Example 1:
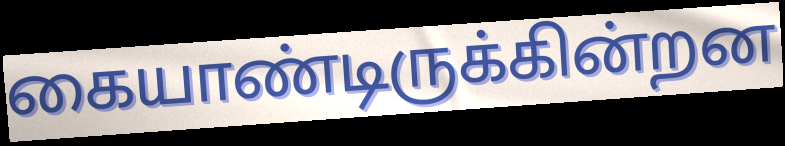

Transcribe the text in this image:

கையாண்டிருக்கின்றன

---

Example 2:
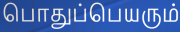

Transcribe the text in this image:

பொதுப்பெயரும்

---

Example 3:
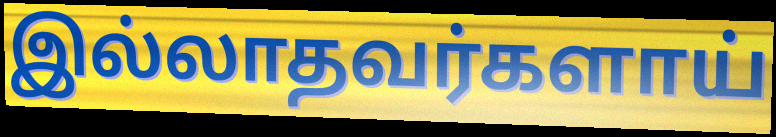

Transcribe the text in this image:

இல்லாதவர்களாய்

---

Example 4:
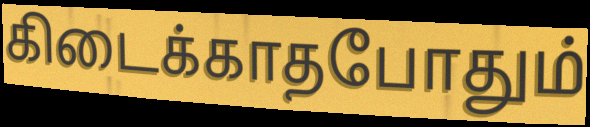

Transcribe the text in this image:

கிடைக்காதபோதும்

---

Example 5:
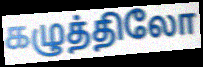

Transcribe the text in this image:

கழுத்திலோ